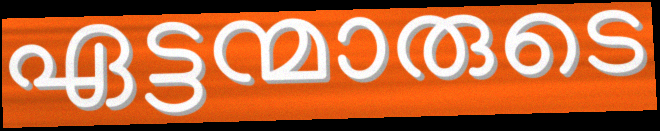
ഏട്ടന്മാരുടെ